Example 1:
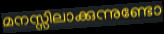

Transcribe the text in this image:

മനസ്സിലാക്കുന്നുണ്ടോ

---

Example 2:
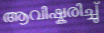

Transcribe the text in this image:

ആവിഷ്കരിച്ചു്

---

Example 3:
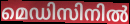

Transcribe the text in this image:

മെഡിസിനിൽ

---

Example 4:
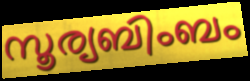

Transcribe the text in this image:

സൂര്യബിംബം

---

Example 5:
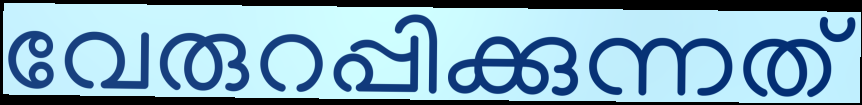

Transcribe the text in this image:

വേരുറപ്പിക്കുന്നത്